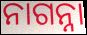
ନାଗନ୍ନା